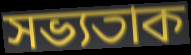
সভ্যতাক